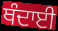
ਥੰਦਾਈ